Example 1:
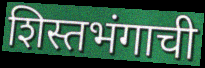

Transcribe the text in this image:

शिस्तभंगाची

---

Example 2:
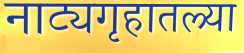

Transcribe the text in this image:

नाट्यगृहातल्या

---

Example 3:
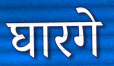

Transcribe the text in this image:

घारगे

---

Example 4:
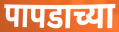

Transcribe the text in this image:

पापडाच्या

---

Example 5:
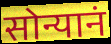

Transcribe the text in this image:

सोन्यानं